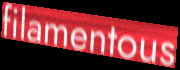
filamentous